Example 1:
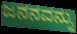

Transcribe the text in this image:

ಜನನವನ್ನು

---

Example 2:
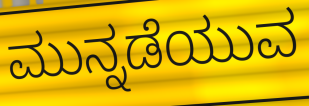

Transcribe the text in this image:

ಮುನ್ನಡೆಯುವ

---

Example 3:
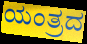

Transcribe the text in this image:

ಯಂತ್ರದ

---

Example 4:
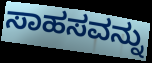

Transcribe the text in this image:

ಸಾಹಸವನ್ನು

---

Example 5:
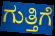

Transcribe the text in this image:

ಗುತ್ತಿಗೆ